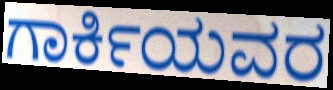
ಗಾರ್ಕಿಯವರ